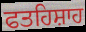
ਫਤਹਿਸ਼ਾਹ